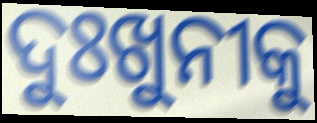
ଦୁଃଖୁନୀକୁ